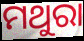
ମଥୁରା